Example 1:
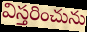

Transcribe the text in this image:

విస్తరించును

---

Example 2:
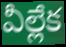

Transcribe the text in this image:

వీల్లేక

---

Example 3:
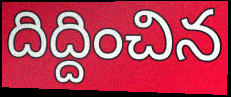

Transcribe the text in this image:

దిద్దించిన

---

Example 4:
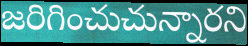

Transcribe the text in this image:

జరిగించుచున్నారని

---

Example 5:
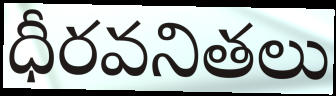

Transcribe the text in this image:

ధీరవనితలు